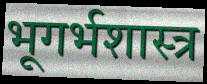
भूगर्भशास्त्र